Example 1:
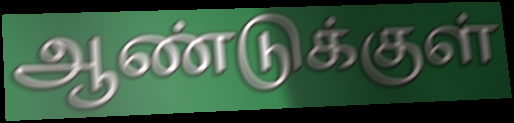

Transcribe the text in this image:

ஆண்டுக்குள்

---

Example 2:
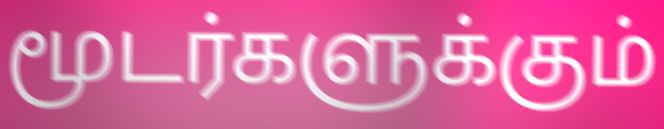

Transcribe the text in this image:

மூடர்களுக்கும்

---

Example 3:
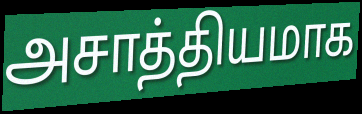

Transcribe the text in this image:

அசாத்தியமாக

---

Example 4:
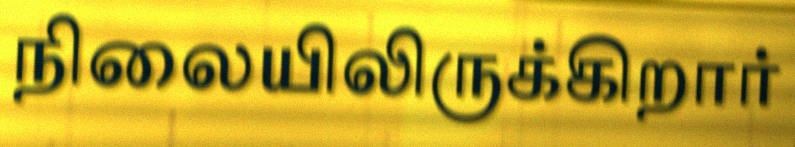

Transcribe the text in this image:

நிலையிலிருக்கிறார்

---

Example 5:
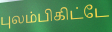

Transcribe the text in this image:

புலம்பிகிட்டே